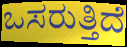
ಒಸರುತ್ತಿದೆ